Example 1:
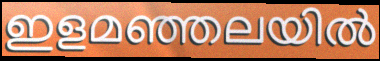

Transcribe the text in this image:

ഇളമഞ്ഞലയിൽ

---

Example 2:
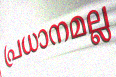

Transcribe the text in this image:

പ്രധാനമല്ല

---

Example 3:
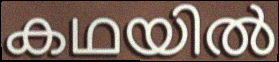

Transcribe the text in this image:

കഥയിൽ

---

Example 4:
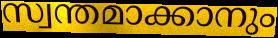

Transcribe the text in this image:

സ്വന്തമാക്കാനും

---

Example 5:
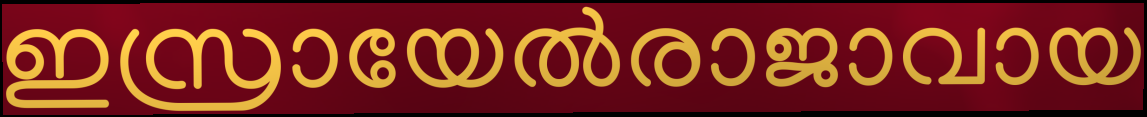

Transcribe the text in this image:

ഇസ്രായേൽരാജാവായ